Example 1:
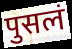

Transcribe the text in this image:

पुसलं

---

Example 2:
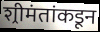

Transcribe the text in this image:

श्रीमंतांकडून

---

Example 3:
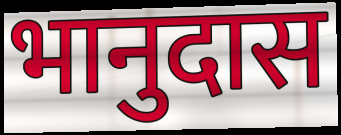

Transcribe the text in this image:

भानुदास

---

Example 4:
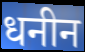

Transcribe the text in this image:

धनीन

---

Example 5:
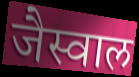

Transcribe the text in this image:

जैस्वाल